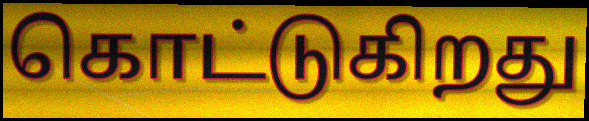
கொட்டுகிறது